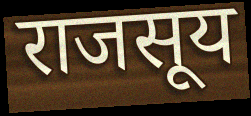
राजसूय